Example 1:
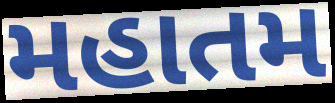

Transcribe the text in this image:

મહાતમ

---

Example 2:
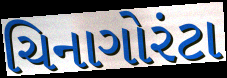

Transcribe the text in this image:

ચિનાગોરંટા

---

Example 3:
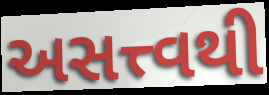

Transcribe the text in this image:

અસત્ત્વથી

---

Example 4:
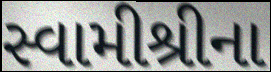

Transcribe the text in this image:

સ્વામીશ્રીના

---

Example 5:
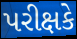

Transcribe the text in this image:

પરીક્ષકે